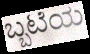
ಬ್ಬಟೆಯ